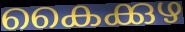
കൈക്കുഴ